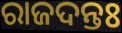
ରାଜଦନ୍ତଃ